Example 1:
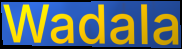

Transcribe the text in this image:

Wadala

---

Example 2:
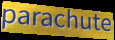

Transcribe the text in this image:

parachute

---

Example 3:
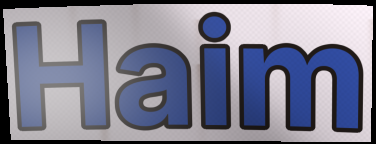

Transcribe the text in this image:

Haim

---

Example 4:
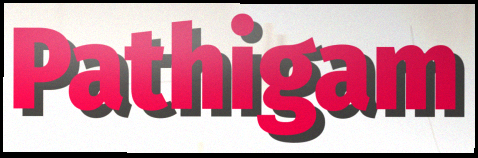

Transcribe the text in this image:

Pathigam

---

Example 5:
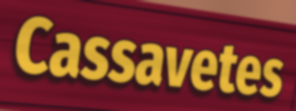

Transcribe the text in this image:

Cassavetes